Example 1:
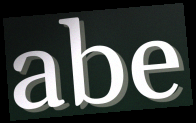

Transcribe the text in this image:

abe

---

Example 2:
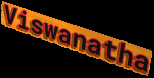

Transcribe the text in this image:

Viswanatha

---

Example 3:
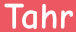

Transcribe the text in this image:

Tahr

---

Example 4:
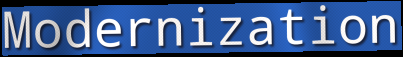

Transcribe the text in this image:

Modernization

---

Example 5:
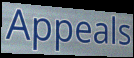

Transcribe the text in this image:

Appeals